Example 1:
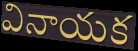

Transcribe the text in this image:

వినాయక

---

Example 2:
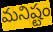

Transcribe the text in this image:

మనిష్టం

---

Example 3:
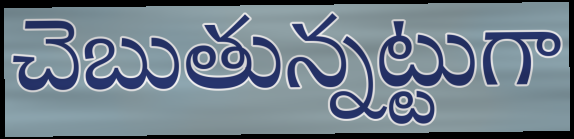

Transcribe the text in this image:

చెబుతున్నట్టుగా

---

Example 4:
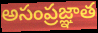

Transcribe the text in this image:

అసంప్రజ్ఞాత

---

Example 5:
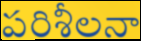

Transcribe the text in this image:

పరిశీలనా